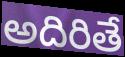
అదిరితే